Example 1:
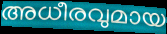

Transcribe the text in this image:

അധീരവുമായ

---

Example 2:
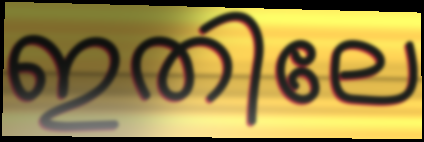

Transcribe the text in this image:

ഇതിലേ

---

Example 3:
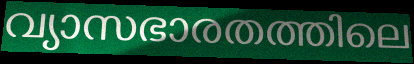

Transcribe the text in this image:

വ്യാസഭാരതത്തിലെ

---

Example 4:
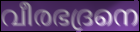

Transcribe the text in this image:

വീരഭദ്രനെ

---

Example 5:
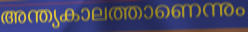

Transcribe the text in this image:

അന്ത്യകാലത്താണെന്നും